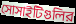
সোসাইটিগুলির